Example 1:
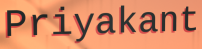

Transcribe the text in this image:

Priyakant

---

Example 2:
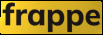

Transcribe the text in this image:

frappe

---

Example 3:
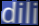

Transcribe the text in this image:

dili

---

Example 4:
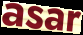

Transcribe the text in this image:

asar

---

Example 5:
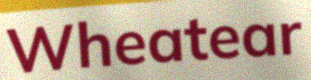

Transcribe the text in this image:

Wheatear